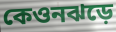
কেওনঝড়ে